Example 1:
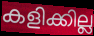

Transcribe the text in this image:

കളിക്കില്ല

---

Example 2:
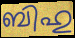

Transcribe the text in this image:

ബിഹു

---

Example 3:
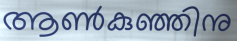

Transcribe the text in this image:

ആൺകുഞ്ഞിനു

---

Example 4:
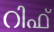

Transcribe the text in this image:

റിഫ്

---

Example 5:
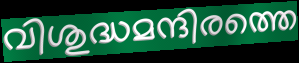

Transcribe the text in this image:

വിശുദ്ധമന്ദിരത്തെ